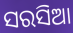
ସରସିଆ